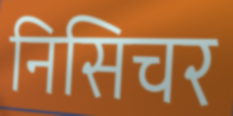
निसिचर